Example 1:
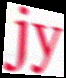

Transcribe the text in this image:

jy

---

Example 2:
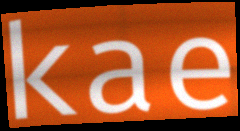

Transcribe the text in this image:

kae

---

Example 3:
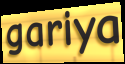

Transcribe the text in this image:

gariya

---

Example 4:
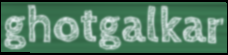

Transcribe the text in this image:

ghotgalkar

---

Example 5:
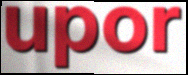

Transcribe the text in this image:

upor